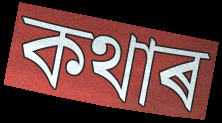
কথাৰ